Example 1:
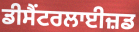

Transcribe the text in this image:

ਡੀਸੈਂਟਰਲਾਈਜ਼ਡ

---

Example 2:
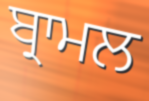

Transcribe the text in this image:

ਬ੍ਰਾਮਲ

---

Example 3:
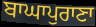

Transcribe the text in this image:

ਬਾਘਾਪੁਰਾਣਾ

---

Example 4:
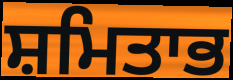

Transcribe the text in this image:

ਸ਼ਮਿਤਾਭ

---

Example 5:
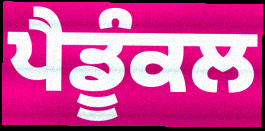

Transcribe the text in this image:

ਪੈਡੂੰਕਲ